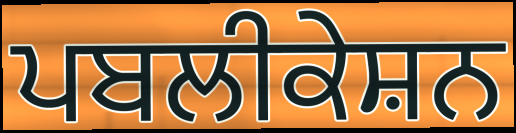
ਪਬਲੀਕੇਸ਼ਨ